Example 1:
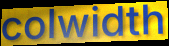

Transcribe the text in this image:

colwidth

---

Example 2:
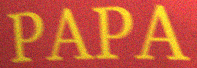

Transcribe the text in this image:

PAPA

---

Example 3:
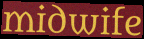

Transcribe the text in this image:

midwife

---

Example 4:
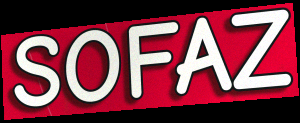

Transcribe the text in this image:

SOFAZ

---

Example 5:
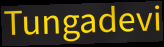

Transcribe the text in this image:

Tungadevi